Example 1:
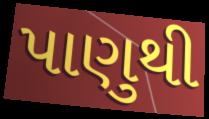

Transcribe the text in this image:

પાણુથી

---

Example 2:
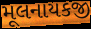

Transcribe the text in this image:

મૂલનાયકજી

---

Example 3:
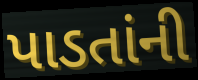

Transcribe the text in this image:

પાડતાંની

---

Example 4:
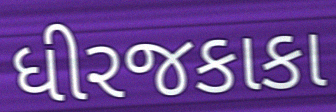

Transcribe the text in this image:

ધીરજકાકા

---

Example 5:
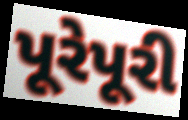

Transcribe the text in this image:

પૂરેપૂરી